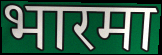
भारमा